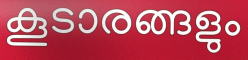
കൂടാരങ്ങളും